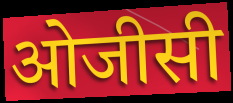
ओजीसी